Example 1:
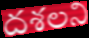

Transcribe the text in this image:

దశలని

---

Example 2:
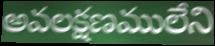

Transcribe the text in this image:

అవలక్షణములేని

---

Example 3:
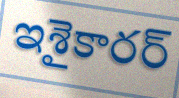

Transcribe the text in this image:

ఇశైకారర్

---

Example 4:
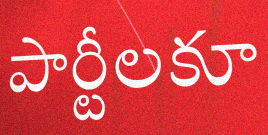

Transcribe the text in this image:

పార్టీలకూ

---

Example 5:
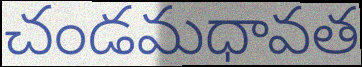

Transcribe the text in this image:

చండమధావత